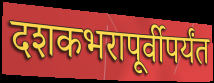
दशकभरापूर्वीपर्यंत